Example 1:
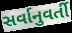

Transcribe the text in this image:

સર્વાનુવર્તી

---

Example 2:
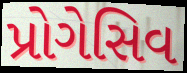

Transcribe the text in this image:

પ્રોગેસિવ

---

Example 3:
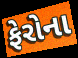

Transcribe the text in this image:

ફેરોના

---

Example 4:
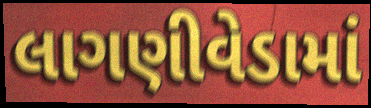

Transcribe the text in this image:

લાગણીવેડામાં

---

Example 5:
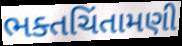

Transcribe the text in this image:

ભક્તચિંતામણી